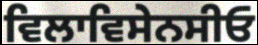
ਵਿਲਾਵਿਸੇਨਸੀਓ